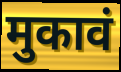
मुकावं